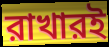
রাখারই